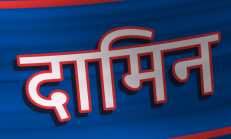
दामिन